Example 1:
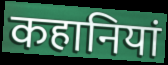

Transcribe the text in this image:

कहानियां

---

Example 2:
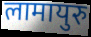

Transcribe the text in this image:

लामायुरु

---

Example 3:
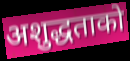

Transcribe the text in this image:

अशुद्धताको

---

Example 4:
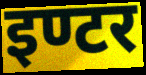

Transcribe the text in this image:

इण्टर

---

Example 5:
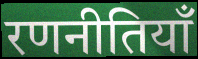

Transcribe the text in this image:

रणनीतियाँ